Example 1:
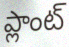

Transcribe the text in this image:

ప్లాంట్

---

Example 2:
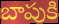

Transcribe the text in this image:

బాపుకి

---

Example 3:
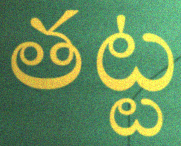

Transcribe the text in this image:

తట్ట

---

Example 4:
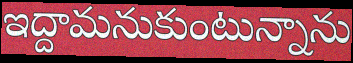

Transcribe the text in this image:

ఇద్దామనుకుంటున్నాను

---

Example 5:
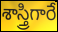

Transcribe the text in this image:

శాస్త్రిగారే